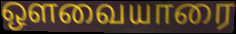
ஔவையாரை